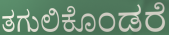
ತಗುಲಿಕೊಂಡರೆ